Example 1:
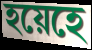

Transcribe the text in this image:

হয়েহে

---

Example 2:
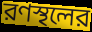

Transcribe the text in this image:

রণস্থলের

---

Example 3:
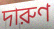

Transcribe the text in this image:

দারুণ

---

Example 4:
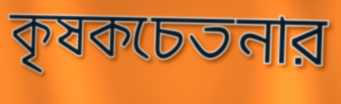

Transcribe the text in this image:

কৃষকচেতনার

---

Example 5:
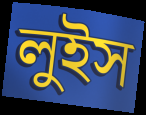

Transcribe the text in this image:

লুইস